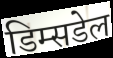
डिम्सडेल